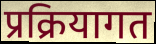
प्रक्रियागत